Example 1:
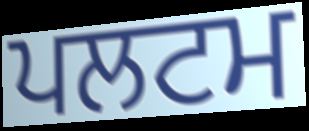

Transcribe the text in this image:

ਪਲਟਮ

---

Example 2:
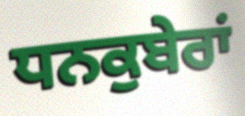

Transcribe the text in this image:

ਧਨਕੁਬੇਰਾਂ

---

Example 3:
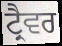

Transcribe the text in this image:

ਟ੍ਰੈਵਰ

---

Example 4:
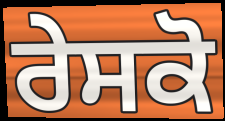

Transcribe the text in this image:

ਰੇਸਕੋ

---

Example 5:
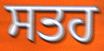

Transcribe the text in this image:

ਸਤਹ